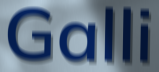
Galli